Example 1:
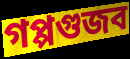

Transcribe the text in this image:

গপ্পগুজব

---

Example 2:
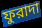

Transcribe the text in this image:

ফুরাদা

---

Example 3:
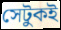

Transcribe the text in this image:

সেটুকই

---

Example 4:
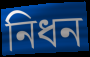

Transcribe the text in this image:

নিধন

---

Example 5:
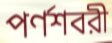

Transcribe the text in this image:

পর্ণশবরী